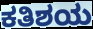
ಕತಿಶಯ